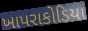
ખાપરાકોડિયા